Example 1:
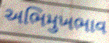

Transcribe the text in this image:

અભિમુખભાવ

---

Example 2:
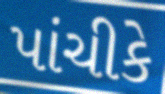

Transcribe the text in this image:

પાંચીકે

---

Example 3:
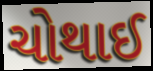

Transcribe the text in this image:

ચોથાઈ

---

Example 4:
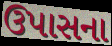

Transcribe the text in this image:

ઉપાસના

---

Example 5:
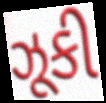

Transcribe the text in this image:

ઝૂકી